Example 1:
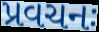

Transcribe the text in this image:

પ્રવચનઃ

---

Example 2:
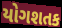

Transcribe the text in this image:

યોગશતક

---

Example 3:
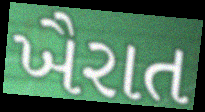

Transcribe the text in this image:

ખૈરાત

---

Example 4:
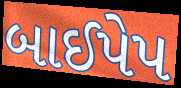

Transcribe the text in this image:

બાઈપેપ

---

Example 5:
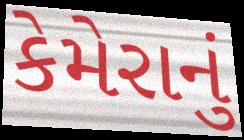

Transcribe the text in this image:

કેમેરાનું